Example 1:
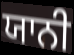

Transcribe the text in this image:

ਯਾਨੀ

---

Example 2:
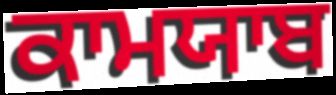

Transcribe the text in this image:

ਕਾਮਯਾਬ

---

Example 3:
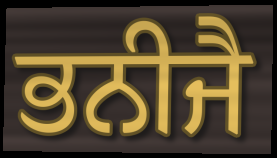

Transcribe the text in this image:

ਭਨੀਜੈ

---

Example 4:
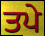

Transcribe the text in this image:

ਤਪੇ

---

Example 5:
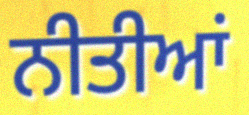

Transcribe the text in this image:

ਨੀਤੀਆਂ